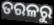
ତରଳରୁ